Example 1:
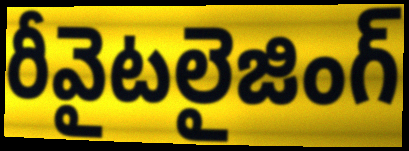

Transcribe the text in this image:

రీవైటలైజింగ్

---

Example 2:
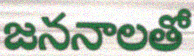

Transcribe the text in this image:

జననాలతో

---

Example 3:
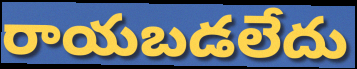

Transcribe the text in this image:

రాయబడలేదు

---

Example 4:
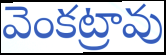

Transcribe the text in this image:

వెంకట్రావు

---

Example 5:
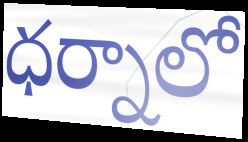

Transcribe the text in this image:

ధర్నాలో